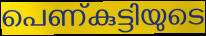
പെണ്കുട്ടിയുടെ